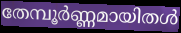
തേമ്പൂർണ്ണമായിതൾ